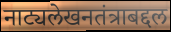
नाट्यलेखनतंत्राबद्दल